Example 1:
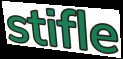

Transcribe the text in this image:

stifle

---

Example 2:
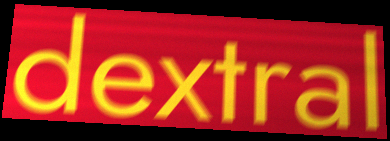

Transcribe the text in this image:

dextral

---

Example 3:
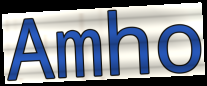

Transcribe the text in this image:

Amho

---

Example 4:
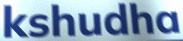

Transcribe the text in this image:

kshudha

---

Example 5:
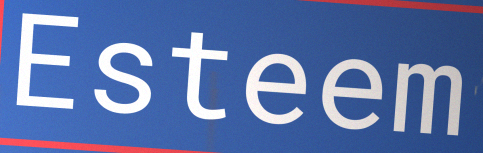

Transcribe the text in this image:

Esteem